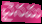
చైనమ